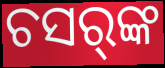
ଚସର୍‌ଙ୍କ